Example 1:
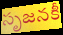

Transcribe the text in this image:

సృజనకీ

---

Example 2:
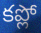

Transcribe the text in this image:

కప్లో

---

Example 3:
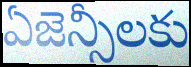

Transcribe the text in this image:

ఏజెన్సీలకు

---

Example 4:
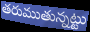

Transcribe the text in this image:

తరుముతున్నట్టు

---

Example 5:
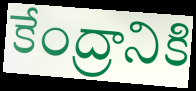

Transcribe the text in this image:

కేంద్రానికి